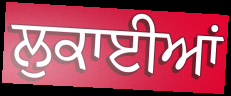
ਲੁਕਾਈਆਂ